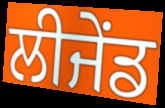
ਲੀਜੇਂਡ